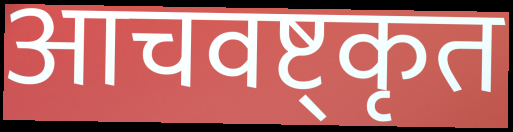
आचवष्ट्कृत